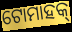
ଟୋମାହକ୍